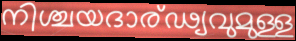
നിശ്ചയദാര്ഢ്യവുമുള്ള